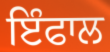
ਇੰਫਾਲ